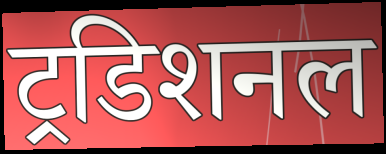
ट्रडिशनल